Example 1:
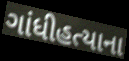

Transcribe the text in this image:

ગાંધીહત્યાના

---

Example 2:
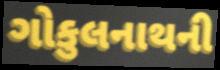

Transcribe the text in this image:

ગોકુલનાથની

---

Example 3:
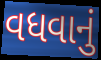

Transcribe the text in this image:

વધવાનું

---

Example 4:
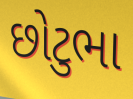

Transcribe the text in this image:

છોટુભા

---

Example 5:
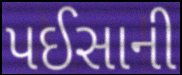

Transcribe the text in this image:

પઈસાની